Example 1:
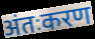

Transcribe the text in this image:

अंतःकरण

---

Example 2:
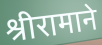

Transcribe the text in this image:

श्रीरामाने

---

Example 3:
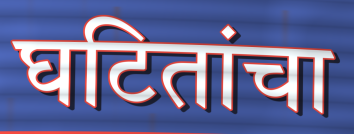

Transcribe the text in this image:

घटितांचा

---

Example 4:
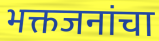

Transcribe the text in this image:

भक्तजनांचा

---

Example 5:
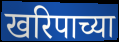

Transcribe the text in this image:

खरिपाच्या